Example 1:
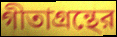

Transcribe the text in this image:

গীতাগ্রন্থের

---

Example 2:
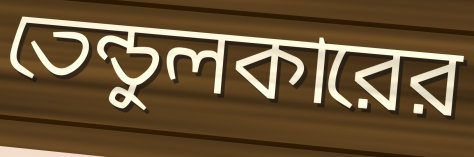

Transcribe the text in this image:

তেন্ডুলকারের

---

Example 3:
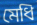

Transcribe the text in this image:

মেধি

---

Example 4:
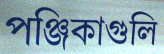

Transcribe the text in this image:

পঞ্জিকাগুলি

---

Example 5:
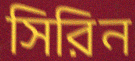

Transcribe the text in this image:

সিরিন